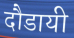
दौडायी